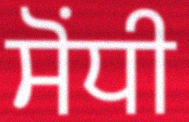
ਸੋਂਧੀ